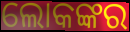
ଲୋକଙ୍କର